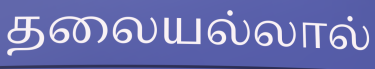
தலையல்லால்